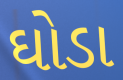
ઘોડા